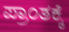
ಪ್ರಾಂತಕ್ಕೆ